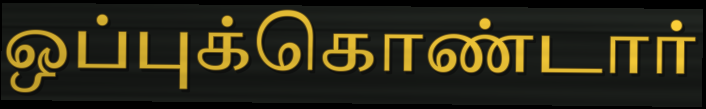
ஒப்புக்கொண்டார்